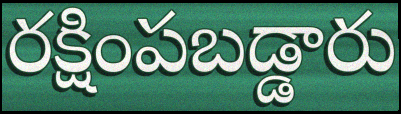
రక్షింపబడ్డారు